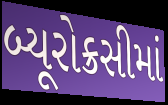
બ્યૂરોક્રસીમાં